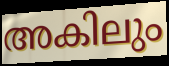
അകിലും